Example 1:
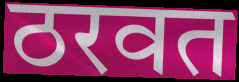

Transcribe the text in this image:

ठरवत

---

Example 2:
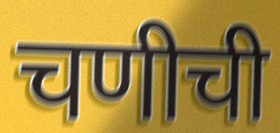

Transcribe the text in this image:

चणीची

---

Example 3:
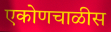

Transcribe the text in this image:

एकोणचाळीस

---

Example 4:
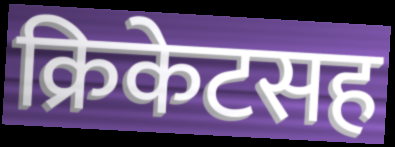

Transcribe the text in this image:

क्रिकेटसह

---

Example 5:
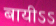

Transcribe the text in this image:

बायीऽऽ